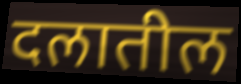
दलातील